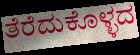
ತೆರೆದುಕೊಳ್ಳದ